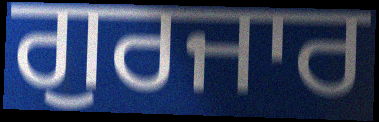
ਗੁਰਜਾਰ